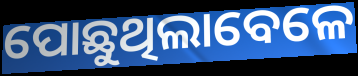
ପୋଛୁଥିଲାବେଳେ